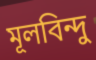
মূলবিন্দু